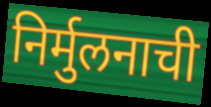
निर्मुलनाची